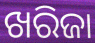
ଖରିଜା